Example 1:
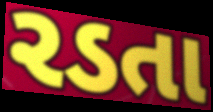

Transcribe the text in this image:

રડતા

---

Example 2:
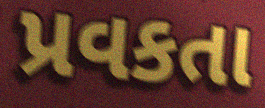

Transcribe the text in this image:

પ્રવકતા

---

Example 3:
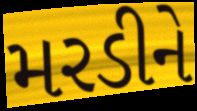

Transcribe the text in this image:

મરડીને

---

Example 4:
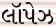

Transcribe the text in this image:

લૉપેઝ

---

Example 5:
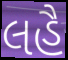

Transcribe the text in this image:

લહૈ